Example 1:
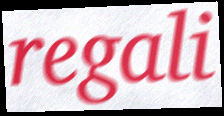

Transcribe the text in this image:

regali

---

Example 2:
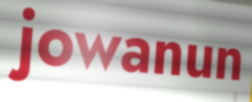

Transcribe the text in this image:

jowanun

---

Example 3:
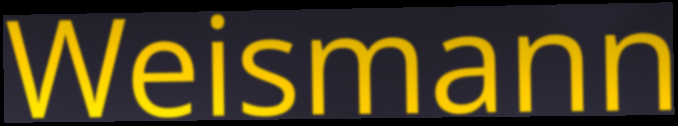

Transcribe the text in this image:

Weismann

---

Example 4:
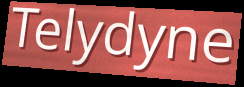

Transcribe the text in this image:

Telydyne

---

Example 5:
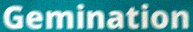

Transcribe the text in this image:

Gemination